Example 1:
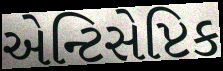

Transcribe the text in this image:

એન્ટિસેપ્ટિક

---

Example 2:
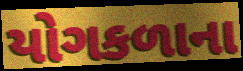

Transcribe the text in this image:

યોગકળાના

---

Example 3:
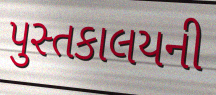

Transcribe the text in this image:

પુસ્તકાલયની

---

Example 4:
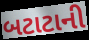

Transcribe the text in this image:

બટાટાની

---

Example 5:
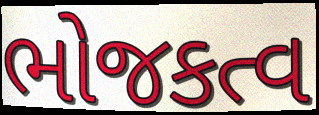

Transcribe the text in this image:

ભોજકત્વ